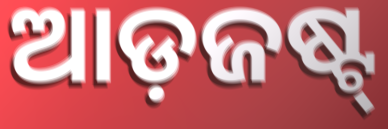
ଆଡ଼ଜଷ୍ଟ୍